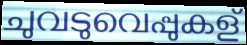
ചുവടുവെപ്പുകള്